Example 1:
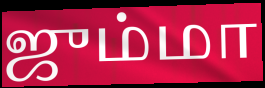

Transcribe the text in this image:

ஜும்மா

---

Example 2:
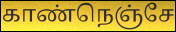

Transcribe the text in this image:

காண்நெஞ்சே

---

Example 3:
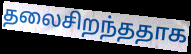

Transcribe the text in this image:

தலைசிறந்ததாக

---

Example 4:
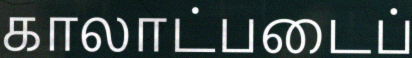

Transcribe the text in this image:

காலாட்படைப்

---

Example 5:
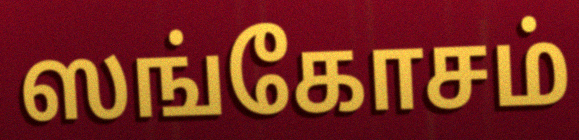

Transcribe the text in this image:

ஸங்கோசம்